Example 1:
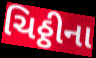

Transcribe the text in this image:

ચિઠ્ઠીના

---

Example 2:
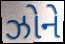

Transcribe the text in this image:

ઝોને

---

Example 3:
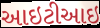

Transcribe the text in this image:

આઇટીઆઇ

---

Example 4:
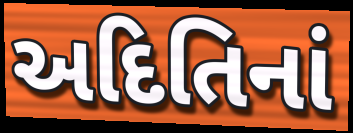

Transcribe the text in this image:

અદિતિનાં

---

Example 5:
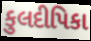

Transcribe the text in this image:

કુલદીપિકા